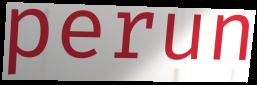
perun